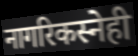
नागरिकस्नेही